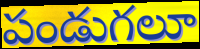
పండుగలూ